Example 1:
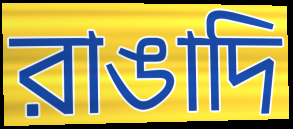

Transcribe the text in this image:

রাঙাদি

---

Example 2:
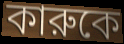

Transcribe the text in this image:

কারুকে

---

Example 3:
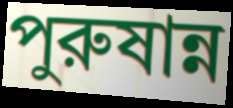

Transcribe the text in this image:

পুরুষান্ন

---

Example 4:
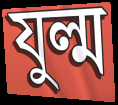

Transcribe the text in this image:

যুল্ম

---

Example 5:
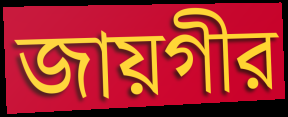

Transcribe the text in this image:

জায়গীর